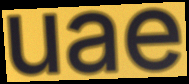
uae